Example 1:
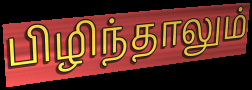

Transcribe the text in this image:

பிழிந்தாலும்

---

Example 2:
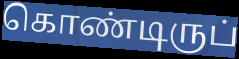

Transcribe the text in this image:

கொண்டிருப்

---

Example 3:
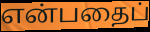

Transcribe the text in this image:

என்பதைப்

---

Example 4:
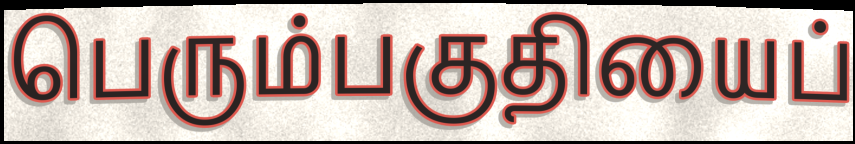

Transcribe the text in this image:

பெரும்பகுதியைப்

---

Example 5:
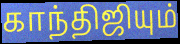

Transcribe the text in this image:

காந்திஜியும்